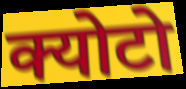
क्‍योटो